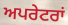
ਅਪਰੇਟਰਾਂ